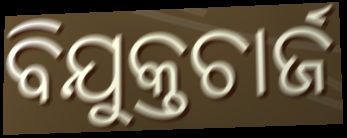
ବିଯୁକ୍ତଚାର୍ଜ